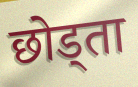
छोड्ता